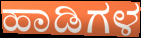
ಹಾಡಿಗಳ